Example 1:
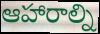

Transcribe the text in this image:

ఆహారాల్ని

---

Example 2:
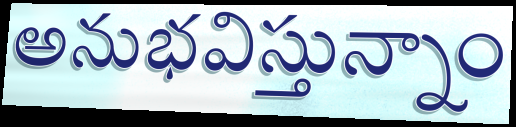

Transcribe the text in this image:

అనుభవిస్తున్నాం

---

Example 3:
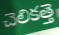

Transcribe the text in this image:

చెలికత్తె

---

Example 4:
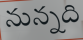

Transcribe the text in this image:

నున్నది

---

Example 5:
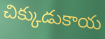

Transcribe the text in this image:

చిక్కుడుకాయ